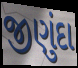
જીણુંદા